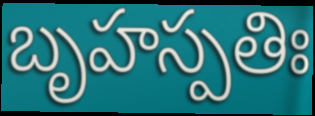
బృహస్పతిః